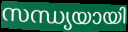
സന്ധ്യയായി